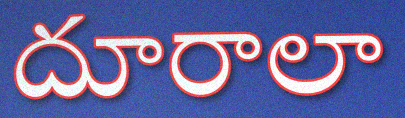
దూరాలా